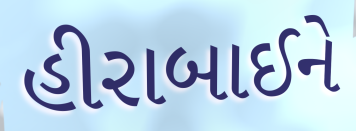
હીરાબાઈને